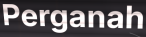
Perganah